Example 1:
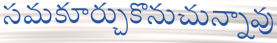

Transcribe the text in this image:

సమకూర్చుకొనుచున్నావు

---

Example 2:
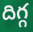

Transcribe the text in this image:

దిగ్గ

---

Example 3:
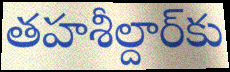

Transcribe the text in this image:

తహశీల్దార్‌కు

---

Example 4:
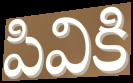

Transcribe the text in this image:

పివికి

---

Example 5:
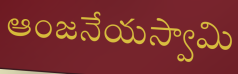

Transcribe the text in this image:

ఆంజనేయస్వామి